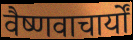
वैष्णवाचार्यों